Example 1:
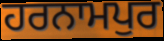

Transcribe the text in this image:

ਹਰਨਾਮਪੁਰ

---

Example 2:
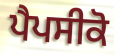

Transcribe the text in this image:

ਪੈਪਸੀਕੋ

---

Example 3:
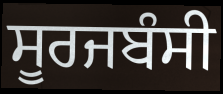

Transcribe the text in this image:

ਸੂਰਜਬੰਸੀ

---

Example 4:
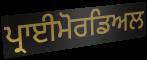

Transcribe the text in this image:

ਪ੍ਰਾਈਮੋਰਡਿਅਲ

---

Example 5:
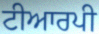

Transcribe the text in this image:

ਟੀਆਰਪੀ